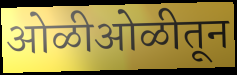
ओळीओळीतून